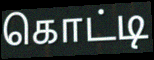
கொட்டி